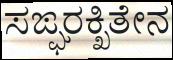
ಸಙ್ಘರಕ್ಖಿತೇನ